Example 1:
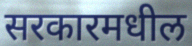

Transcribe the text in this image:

सरकारमधील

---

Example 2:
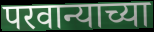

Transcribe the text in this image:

परवान्याच्या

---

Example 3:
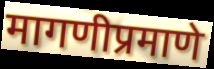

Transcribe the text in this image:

मागणीप्रमाणे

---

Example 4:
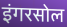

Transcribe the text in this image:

इंगरसोल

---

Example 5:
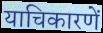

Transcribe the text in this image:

याचिकारणें